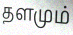
தளமும்